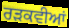
ਰੜਕਵੀਆਂ